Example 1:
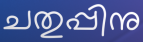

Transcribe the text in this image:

ചതുപ്പിനു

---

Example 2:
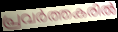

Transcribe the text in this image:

പ്രവർത്തകരിൽ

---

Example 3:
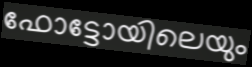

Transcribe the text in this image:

ഫോട്ടോയിലെയും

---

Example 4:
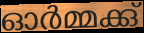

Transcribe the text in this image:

ഓർമ്മക്കു്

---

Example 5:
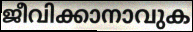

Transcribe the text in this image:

ജീവിക്കാനാവുക